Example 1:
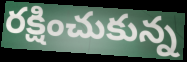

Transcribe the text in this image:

రక్షించుకున్న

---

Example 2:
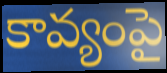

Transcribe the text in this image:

కావ్యంపై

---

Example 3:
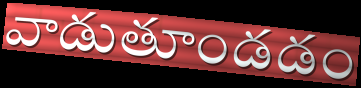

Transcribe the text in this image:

వాడుతూండడం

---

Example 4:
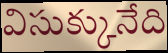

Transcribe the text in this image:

విసుక్కునేది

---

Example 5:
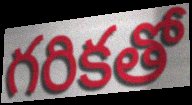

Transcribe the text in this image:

గరికతో